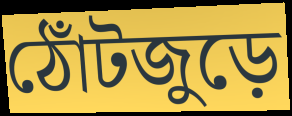
ঠোঁটজুড়ে